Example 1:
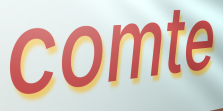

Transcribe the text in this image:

comte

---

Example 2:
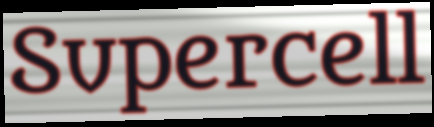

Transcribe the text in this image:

Supercell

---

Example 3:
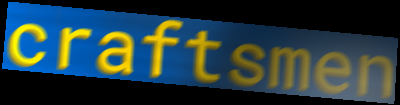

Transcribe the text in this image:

craftsmen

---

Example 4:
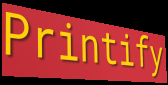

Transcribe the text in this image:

Printify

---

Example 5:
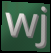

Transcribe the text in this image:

wj